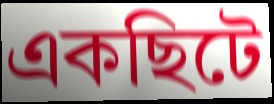
একছিটে